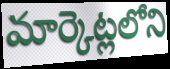
మార్కెట్లలోని